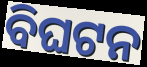
ବିଘଟନ